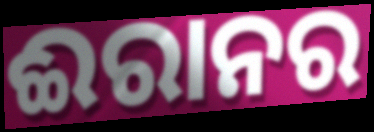
ଈରାନର